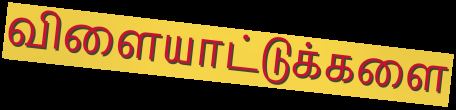
விளையாட்டுக்களை